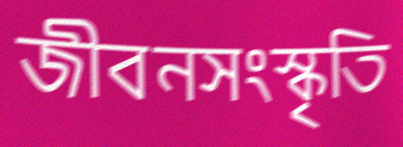
জীবনসংস্কৃতি